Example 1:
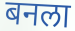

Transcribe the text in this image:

बनला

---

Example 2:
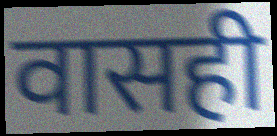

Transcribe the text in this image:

वासही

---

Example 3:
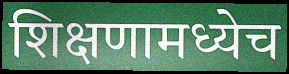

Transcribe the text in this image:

शिक्षणामध्येच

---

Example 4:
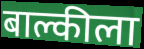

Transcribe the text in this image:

बाल्कीला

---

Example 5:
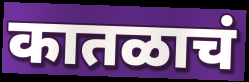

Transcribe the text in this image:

कातळाचं